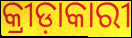
କ୍ରୀଡ଼ାକାରୀ